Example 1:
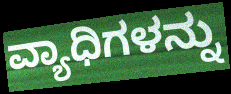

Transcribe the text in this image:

ವ್ಯಾಧಿಗಳನ್ನು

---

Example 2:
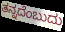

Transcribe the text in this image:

ತನ್ನದೆಂಬುದು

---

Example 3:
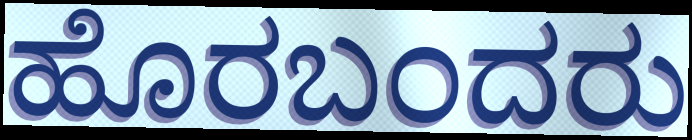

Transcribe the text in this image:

ಹೊರಬಂದರು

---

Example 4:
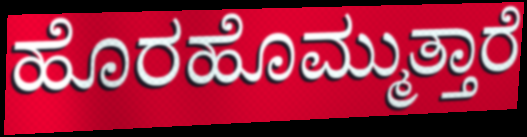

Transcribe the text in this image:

ಹೊರಹೊಮ್ಮುತ್ತಾರೆ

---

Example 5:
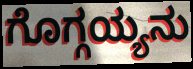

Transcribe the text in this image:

ಗೊಗ್ಗಯ್ಯನು